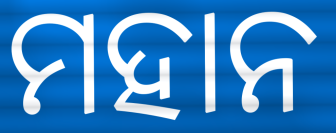
ମହାନ